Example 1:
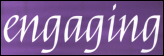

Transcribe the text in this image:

engaging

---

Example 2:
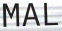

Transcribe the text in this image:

MAL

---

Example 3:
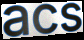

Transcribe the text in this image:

acs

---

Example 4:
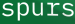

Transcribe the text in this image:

spurs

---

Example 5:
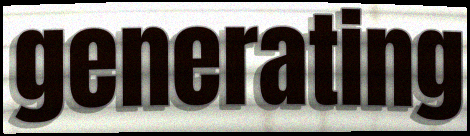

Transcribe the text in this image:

generating